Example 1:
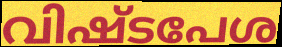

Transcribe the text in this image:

വിഷ്ടപേശ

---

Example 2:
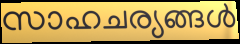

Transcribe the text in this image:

സാഹചര്യങ്ങൾ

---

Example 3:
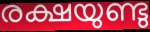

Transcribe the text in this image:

രക്ഷയുണ്ടു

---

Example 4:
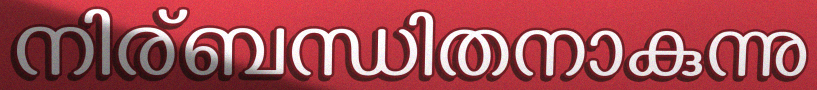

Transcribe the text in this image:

നിര്ബന്ധിതനാകുന്നു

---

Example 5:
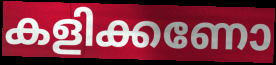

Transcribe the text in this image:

കളിക്കണോ